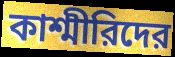
কাশ্মীরিদের